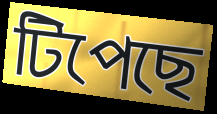
টিপেছে